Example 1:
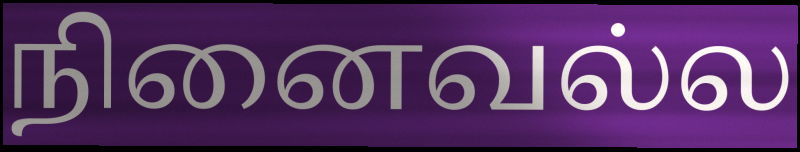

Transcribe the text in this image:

நினைவல்ல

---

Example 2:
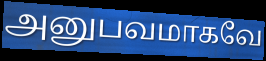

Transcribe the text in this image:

அனுபவமாகவே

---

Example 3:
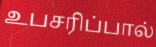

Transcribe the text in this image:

உபசரிப்பால்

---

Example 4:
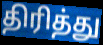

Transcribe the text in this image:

திரித்து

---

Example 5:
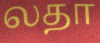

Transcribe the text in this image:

லதா